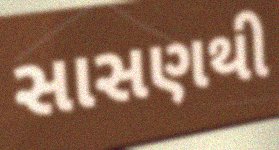
સાસણથી